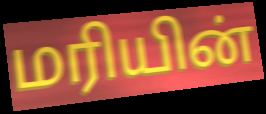
மரியின்